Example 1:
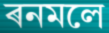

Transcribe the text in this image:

ৰনমলে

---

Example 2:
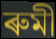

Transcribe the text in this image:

ৰুমী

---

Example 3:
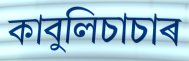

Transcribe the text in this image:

কাবুলিচাচাৰ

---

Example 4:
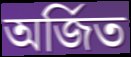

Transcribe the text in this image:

অৰ্জিত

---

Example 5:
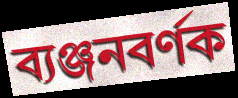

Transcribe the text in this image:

ব্যঞ্জনবৰ্ণক